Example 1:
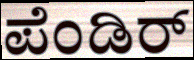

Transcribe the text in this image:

ಪೆಂಡಿರ್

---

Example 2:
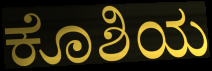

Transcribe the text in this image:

ಕೊಶಿಯ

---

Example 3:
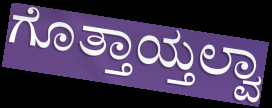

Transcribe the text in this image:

ಗೊತ್ತಾಯ್ತಲ್ವಾ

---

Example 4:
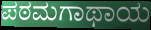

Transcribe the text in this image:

ಪಠಮಗಾಥಾಯ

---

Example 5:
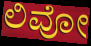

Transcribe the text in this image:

ಲಿವೋ